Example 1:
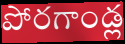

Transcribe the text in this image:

పోరగాండ్ల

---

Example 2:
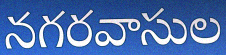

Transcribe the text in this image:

నగరవాసుల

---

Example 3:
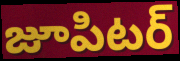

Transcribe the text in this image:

జూపిటర్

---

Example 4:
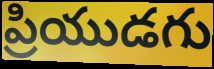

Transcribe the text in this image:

ప్రియుడగు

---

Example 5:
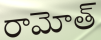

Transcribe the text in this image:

రామోత్